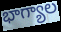
భాగ్యాల